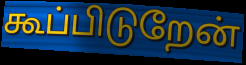
கூப்பிடுறேன்